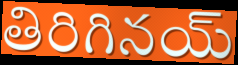
తిరిగినయ్